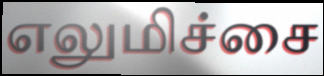
எலுமிச்சை